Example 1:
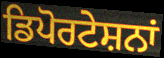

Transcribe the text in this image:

ਡਿਪੋਰਟੇਸ਼ਨਾਂ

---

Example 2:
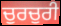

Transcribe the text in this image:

ਚੁਰਚੁਰੀ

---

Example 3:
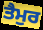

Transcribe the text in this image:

ਤੈਮੁਰ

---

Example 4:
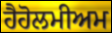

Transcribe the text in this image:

ਹੈਹੋਲਮੀਅਮ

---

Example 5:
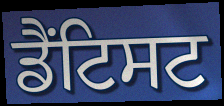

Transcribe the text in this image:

ਡੈਂਟਿਸਟ